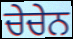
ਚੇਚੇਨ